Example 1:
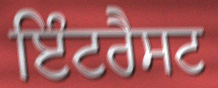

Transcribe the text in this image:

ਇੰਟਰੈਸਟ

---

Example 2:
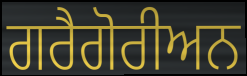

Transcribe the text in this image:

ਗਰੈਗੋਰੀਅਨ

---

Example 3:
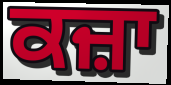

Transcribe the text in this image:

ਕਜ਼ਾ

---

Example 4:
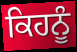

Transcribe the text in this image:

ਕਿਹਨੂੰ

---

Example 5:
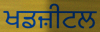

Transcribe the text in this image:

ਖਡਜ਼ੀਟਲ